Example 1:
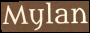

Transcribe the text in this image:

Mylan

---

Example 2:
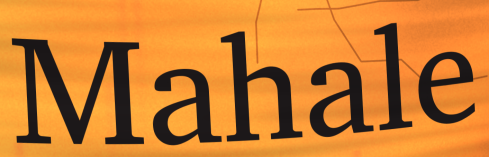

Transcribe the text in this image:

Mahale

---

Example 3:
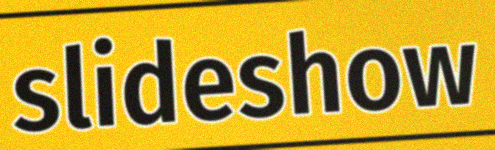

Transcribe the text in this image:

slideshow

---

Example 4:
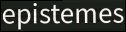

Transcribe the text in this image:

epistemes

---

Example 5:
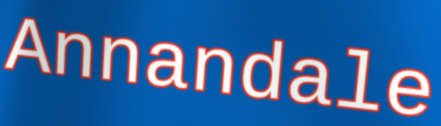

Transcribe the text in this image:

Annandale